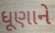
ધૂણાને